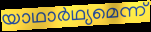
യാഥാർഥ്യമെന്ന്